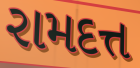
રામદત્ત